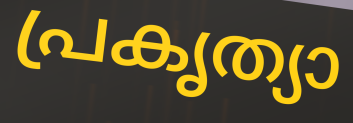
പ്രകൃത്യാ